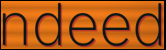
ndeed